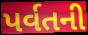
પર્વતની